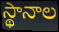
స్థానాల